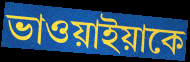
ভাওয়াইয়াকে